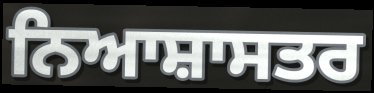
ਨਿਆਸ਼ਾਸਤਰ